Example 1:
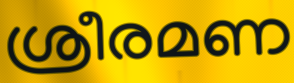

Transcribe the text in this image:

ശ്രീരമണ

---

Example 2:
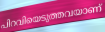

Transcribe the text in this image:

പിറവിയെടുത്തവയാണ്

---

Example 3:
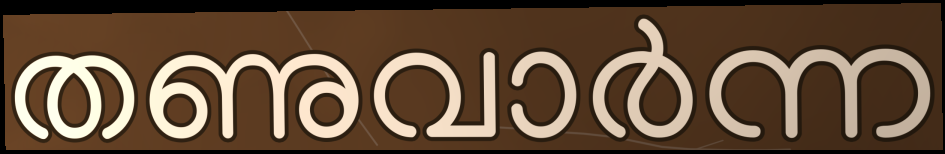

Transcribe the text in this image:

തണുവാർന്ന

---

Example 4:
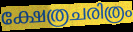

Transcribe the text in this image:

ക്ഷേത്രചരിത്രം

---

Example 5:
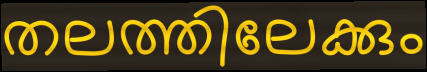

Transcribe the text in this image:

തലത്തിലേക്കും